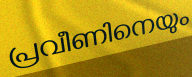
പ്രവീണിനെയും